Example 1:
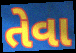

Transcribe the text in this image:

તેવા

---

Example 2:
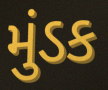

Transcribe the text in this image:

મુંડક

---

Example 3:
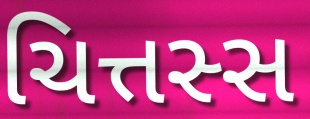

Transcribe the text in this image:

ચિત્તસ્સ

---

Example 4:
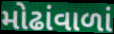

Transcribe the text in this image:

મોઢાંવાળાં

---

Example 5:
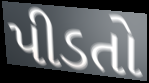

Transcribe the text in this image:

પીડતો